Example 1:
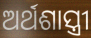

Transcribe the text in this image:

ଅର୍ଥଶାସ୍ତ୍ରୀ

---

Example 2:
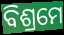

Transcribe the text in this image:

ବିଶ୍ରମେ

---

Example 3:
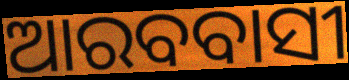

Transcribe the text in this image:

ଆରବବାସୀ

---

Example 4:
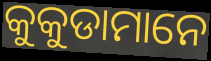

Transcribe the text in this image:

କୁକୁଡାମାନେ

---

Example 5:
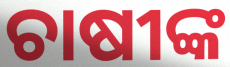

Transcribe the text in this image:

ଚାଷୀଙ୍କ